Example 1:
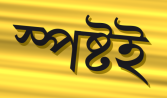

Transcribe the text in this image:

স্পষ্টই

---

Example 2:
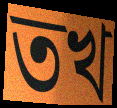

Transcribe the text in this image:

তখ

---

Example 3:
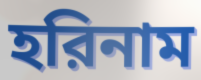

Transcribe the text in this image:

হরিনাম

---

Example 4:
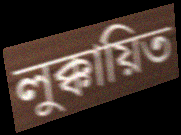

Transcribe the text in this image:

লুক্কায়িত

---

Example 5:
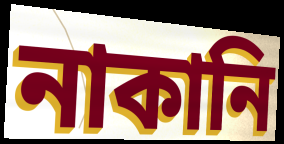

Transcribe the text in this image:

নাকানি